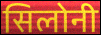
सिलोनी